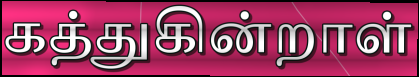
கத்துகின்றாள்